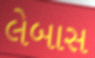
લેબાસ